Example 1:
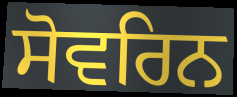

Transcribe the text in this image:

ਸੋਵਰਿਨ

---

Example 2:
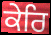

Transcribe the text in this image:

ਕੇਰਿ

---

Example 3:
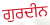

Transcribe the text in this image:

ਗੁਰਦੀਨ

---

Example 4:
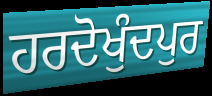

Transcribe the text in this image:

ਹਰਦੋਖੁੰਦਪੁਰ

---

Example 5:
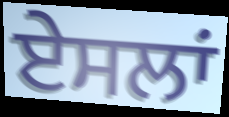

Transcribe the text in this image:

ਏਸਲਾਂ